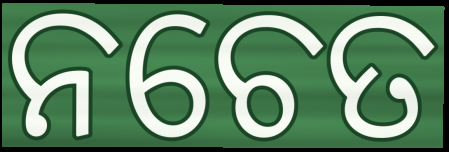
ନଚେତ